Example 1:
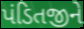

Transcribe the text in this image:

પંડિતજીને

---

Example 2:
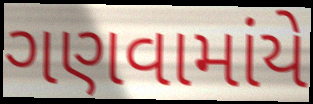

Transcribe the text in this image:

ગણવામાંયે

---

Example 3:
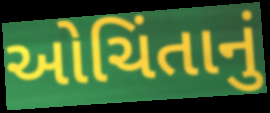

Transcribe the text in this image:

ઓચિંતાનું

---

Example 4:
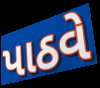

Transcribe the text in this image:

પાઠવે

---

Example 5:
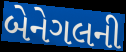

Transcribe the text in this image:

બેનેગલની